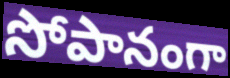
సోపానంగా